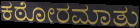
ಕಠೋರಮಾತು